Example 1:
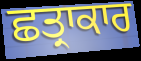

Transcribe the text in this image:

ਛਤ੍ਰਾਕਾਰ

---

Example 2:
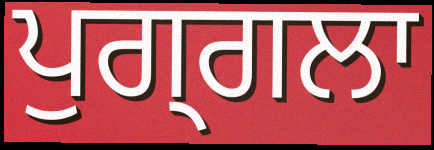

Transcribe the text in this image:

ਪੁਗ੍ਗਲਾ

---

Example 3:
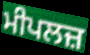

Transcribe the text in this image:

ਮੀਪਲਜ਼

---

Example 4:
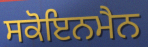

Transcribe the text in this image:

ਸਕੋਇਨਮੈਨ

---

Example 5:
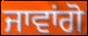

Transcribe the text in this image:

ਜਾਵਾਂਗੋ